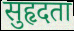
सुहृदता